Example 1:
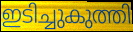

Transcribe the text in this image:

ഇടിച്ചുകുത്തി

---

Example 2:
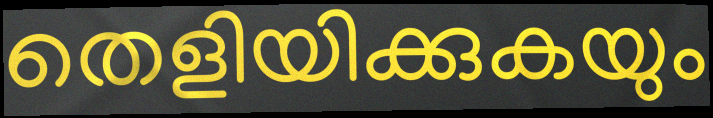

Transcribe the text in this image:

തെളിയിക്കുകയും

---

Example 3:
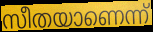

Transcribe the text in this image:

സീതയാണെന്ന്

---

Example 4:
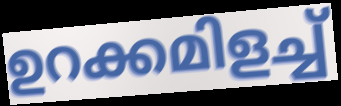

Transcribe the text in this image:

ഉറക്കമിളച്ച്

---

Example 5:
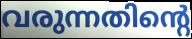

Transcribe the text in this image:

വരുന്നതിന്റെ